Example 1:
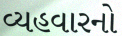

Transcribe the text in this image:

વ્યહવારનો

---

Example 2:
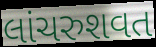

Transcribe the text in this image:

લાંચરુશવત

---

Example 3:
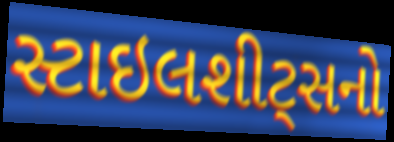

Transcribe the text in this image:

સ્ટાઇલશીટ્સનો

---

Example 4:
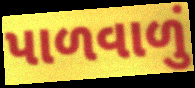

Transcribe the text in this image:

પાળવાળું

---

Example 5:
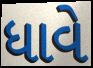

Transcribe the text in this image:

ધાવે